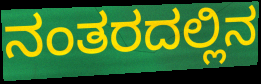
ನಂತರದಲ್ಲಿನ